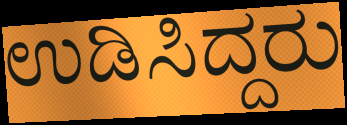
ಉಡಿಸಿದ್ದರು